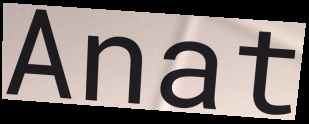
Anat